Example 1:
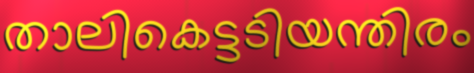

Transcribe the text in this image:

താലികെട്ടടിയന്തിരം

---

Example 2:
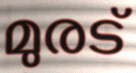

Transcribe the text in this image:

മുരട്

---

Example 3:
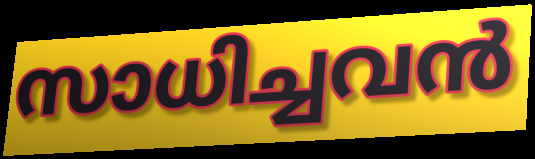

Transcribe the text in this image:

സാധിച്ചവൻ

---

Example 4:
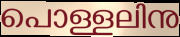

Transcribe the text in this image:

പൊള്ളലിനു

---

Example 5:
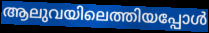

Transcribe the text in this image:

ആലുവയിലെത്തിയപ്പോൾ